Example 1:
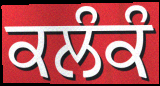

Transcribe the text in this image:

ਕਲੰਕੰ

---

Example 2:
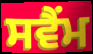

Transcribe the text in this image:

ਸਵੈਂਮ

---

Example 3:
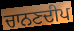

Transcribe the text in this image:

ਚਾਨਣਦੀਪ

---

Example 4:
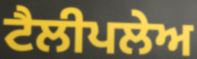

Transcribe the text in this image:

ਟੈਲੀਪਲੇਅ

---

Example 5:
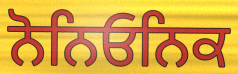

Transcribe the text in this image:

ਨੋਨਿਓਨਿਕ